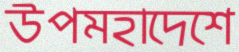
উপমহাদেশে